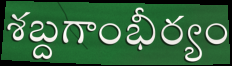
శబ్దగాంభీర్యం